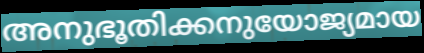
അനുഭൂതിക്കനുയോജ്യമായ